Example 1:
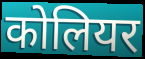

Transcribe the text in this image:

कोलियर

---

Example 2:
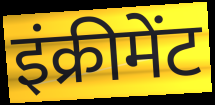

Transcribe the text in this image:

इंक्रीमेंट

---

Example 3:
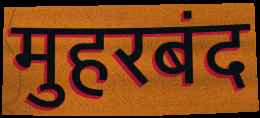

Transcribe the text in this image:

मुहरबंद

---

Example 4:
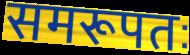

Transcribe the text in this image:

समरूपतः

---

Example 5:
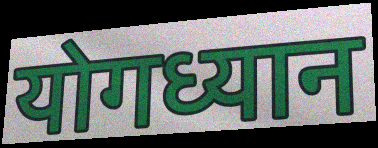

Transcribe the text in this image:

योगध्यान